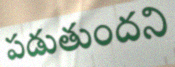
పడుతుందని